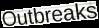
Outbreaks